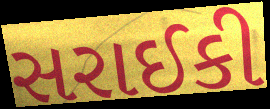
સરાઈકી